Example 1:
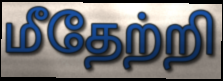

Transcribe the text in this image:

மீதேற்றி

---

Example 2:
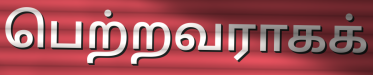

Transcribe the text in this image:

பெற்றவராகக்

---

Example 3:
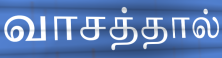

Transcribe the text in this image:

வாசத்தால்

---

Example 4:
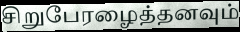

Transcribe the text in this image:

சிறுபேரழைத்தனவும்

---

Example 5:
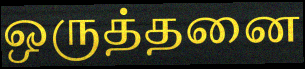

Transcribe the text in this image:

ஒருத்தனை